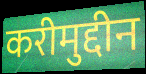
करीमुद्दीन